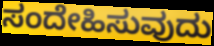
ಸಂದೇಹಿಸುವುದು